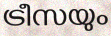
ട്രീസയും